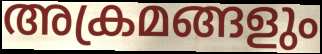
അക്രമങ്ങളും